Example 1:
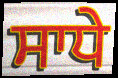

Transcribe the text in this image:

ਸਾਧੇ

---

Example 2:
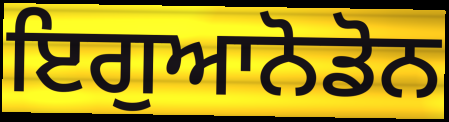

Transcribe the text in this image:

ਇਗੁਆਨੋਡੋਨ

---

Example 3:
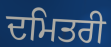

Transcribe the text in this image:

ਦਮਿਤਰੀ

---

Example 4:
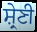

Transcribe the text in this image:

ਸ਼੍ਰੇਣੀ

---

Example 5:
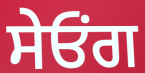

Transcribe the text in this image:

ਸੇਓਂਗ